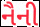
નૈની